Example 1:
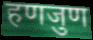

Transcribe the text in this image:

हणजुण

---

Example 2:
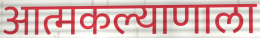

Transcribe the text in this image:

आत्मकल्याणाला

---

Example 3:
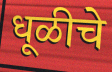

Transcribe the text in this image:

धूळीचे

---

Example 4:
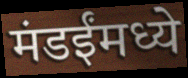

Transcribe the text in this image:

मंडईंमध्ये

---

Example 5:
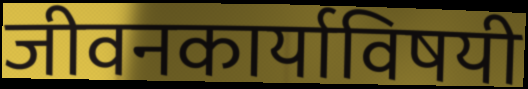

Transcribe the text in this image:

जीवनकार्याविषयी